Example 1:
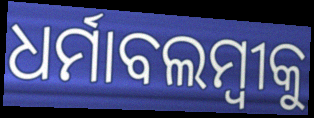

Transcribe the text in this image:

ଧର୍ମାବଲମ୍ବୀକୁ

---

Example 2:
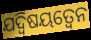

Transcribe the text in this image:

ଯଦ୍ଵିଷୟତ୍ଵେନ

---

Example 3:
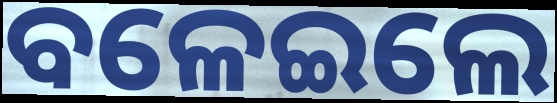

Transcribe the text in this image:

ବଳେଇଲେ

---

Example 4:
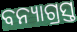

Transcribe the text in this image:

ବନ୍ୟାଗ୍ରସ୍ତ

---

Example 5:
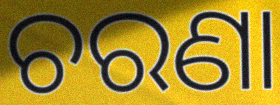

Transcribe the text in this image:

ଚରଣା